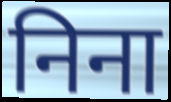
निना